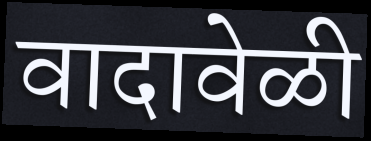
वादावेळी